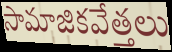
సామాజికవేత్తలు